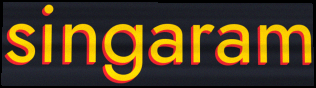
singaram